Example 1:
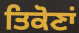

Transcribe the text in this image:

ਤਿਕੋਣਾਂ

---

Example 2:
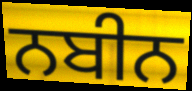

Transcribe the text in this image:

ਨਬੀਨ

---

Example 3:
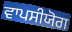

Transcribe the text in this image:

ਵਾਪਸੀਯੋਗ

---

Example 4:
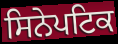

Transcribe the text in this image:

ਸਿਨੇਪਟਿਕ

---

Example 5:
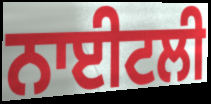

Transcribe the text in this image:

ਨਾਈਟਲੀ